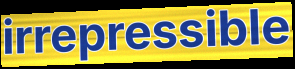
irrepressible